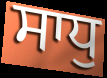
ਸਾਧੁ